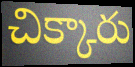
చిక్కారు